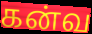
கன்வ